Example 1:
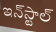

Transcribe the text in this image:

ఇన్‌స్టాల్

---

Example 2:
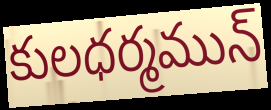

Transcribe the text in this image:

కులధర్మమున్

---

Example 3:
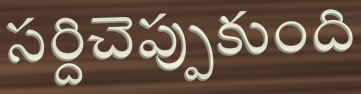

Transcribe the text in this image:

సర్దిచెప్పుకుంది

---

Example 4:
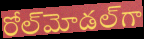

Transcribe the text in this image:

రోల్‌మోడల్‌గా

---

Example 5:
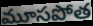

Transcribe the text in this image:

మూసపోత